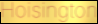
Hoisington